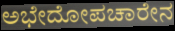
ಅಭೇದೋಪಚಾರೇನ